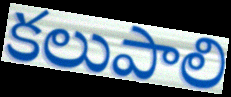
కలుపాలి